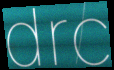
drc